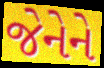
જેનેને